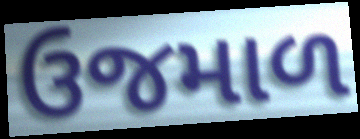
ઉજમાળ